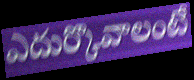
ఎదుర్కొవాలంటే